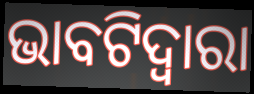
ଭାବଟିଦ୍ୱାରା